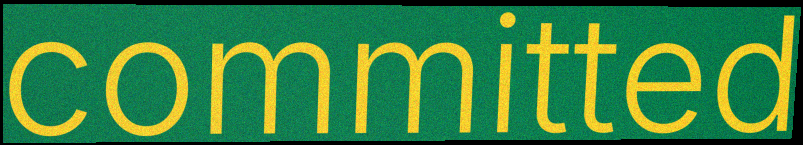
committed